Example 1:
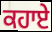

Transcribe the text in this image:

ਕਹਾਏ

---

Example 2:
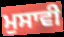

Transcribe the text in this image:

ਮੁਸਾਵੀ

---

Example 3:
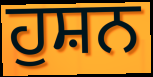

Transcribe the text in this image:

ਹੁਸ਼ਨ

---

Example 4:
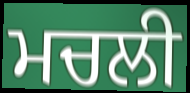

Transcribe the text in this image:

ਮਚਲੀ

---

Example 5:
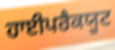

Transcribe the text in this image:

ਹਾਈਪਰੈਕਯੂਟ